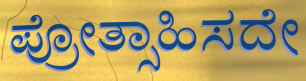
ಪ್ರೋತ್ಸಾಹಿಸದೇ